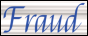
Fraud